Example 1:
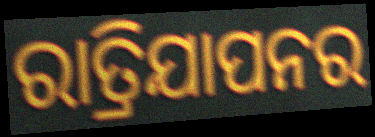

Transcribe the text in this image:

ରାତ୍ରିଯାପନର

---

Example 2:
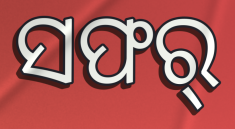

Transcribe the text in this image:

ସଫର୍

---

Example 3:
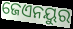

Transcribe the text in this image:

ଜେଏନୟୁର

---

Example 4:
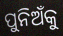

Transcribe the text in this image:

ପୁନିଅଁକୁ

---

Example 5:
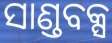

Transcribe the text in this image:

ସାଣ୍ଡବକ୍ସ